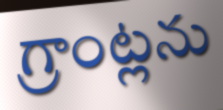
గ్రాంట్లను